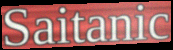
Saitanic